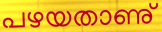
പഴയതാണു്